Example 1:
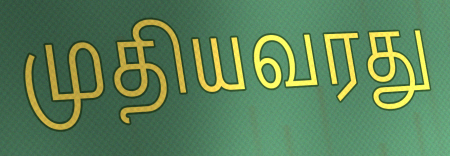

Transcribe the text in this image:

முதியவரது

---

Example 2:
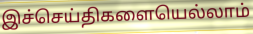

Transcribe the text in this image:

இச்செய்திகளையெல்லாம்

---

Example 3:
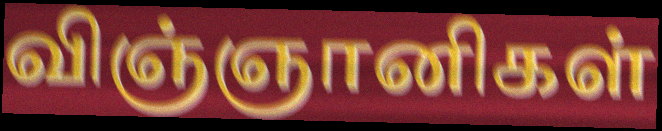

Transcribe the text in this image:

விஞ்ஞானிகள்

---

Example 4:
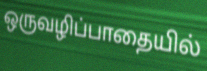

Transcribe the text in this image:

ஒருவழிப்பாதையில்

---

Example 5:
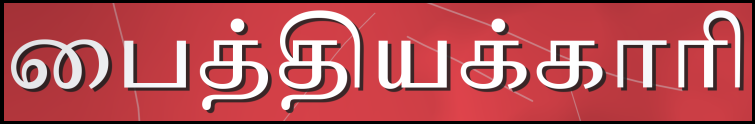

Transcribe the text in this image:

பைத்தியக்காரி